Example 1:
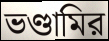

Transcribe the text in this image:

ভণ্ডামির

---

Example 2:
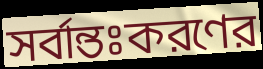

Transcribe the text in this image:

সর্বান্তঃকরণের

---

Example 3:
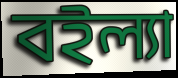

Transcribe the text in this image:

বইল্যা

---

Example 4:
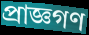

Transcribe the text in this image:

প্রাজ্ঞগণ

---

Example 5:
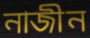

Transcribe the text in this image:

নাজীন